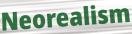
Neorealism